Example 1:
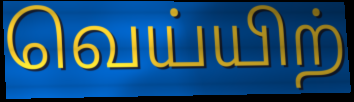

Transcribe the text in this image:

வெய்யிற்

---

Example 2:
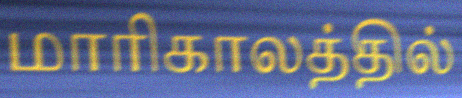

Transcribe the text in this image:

மாரிகாலத்தில்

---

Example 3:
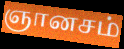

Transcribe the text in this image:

ஞானசம்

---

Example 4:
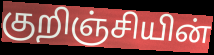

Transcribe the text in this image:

குறிஞ்சியின்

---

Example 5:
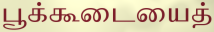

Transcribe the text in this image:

பூக்கூடையைத்